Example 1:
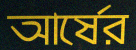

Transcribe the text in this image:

আর্ষের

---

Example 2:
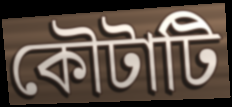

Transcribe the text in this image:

কৌটাটি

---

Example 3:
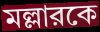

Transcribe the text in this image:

মল্লারকে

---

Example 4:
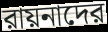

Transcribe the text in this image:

রায়নাদের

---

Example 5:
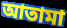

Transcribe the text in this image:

আতামা